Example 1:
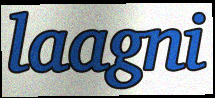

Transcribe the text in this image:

laagni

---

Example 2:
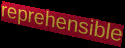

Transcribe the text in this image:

reprehensible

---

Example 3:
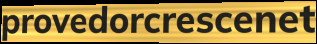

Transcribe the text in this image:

provedorcrescenet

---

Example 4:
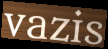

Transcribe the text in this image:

vazis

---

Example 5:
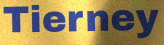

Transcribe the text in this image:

Tierney